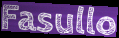
Fasullo